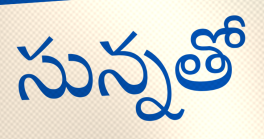
సున్నతో